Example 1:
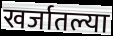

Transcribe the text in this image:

खर्जातल्या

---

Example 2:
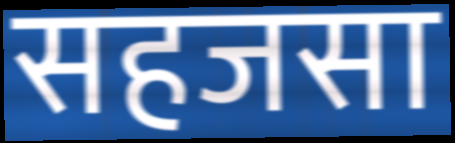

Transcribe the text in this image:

सहजसा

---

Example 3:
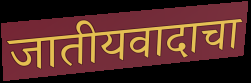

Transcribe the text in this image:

जातीयवादाचा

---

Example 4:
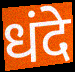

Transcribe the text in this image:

धंदे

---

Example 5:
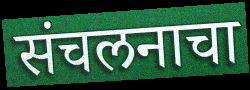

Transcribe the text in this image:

संचलनाचा